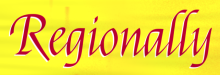
Regionally